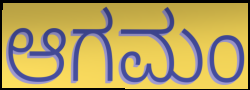
ಆಗಮಂ